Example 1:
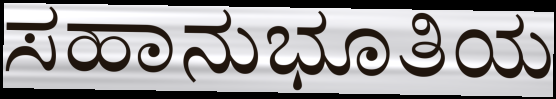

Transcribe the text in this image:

ಸಹಾನುಭೂತಿಯ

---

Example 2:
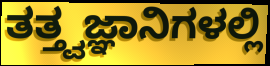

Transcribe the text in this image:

ತತ್ತ್ವಜ್ಞಾನಿಗಳಲ್ಲಿ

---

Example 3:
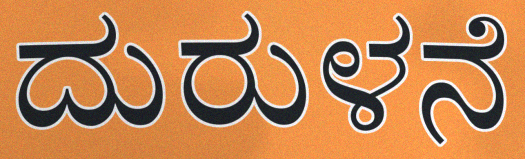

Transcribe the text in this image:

ದುರುಳನೆ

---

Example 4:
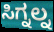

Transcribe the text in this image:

ಸಿಗ್ನಲ್ನ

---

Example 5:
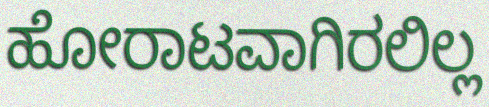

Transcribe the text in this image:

ಹೋರಾಟವಾಗಿರಲಿಲ್ಲ